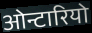
ओन्टारियो